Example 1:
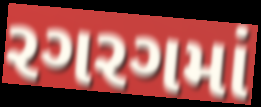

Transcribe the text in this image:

રગરગમાં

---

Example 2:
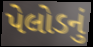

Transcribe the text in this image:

પેલોડનું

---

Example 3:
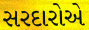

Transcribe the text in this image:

સરદારોએ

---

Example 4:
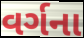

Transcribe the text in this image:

વર્ગના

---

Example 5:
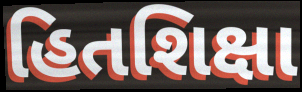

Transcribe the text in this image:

હિતશિક્ષા